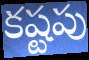
కష్టపు